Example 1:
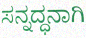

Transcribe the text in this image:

ಸನ್ನದ್ಧನಾಗಿ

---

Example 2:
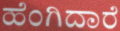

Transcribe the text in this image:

ಹೆಂಗಿದಾರೆ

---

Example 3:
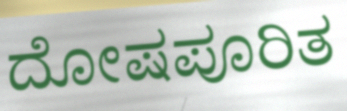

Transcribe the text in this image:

ದೋಷಪೂರಿತ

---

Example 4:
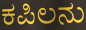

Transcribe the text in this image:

ಕಪಿಲನು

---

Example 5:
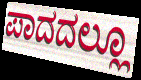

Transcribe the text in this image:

ಪಾದದಲ್ಲೂ